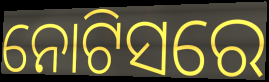
ନୋଟିସରେ